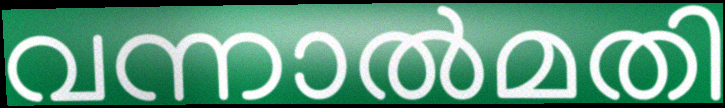
വന്നാൽമതി